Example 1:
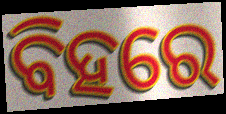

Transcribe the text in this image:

ବିହରେ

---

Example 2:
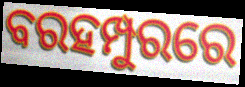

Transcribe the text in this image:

ବରହମ୍ପୁରରେ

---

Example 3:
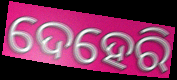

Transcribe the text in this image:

ଦେହେରି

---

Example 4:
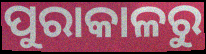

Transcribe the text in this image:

ପୁରାକାଳରୁ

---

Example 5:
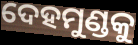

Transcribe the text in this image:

ଦେହମୁଣ୍ଡକୁ